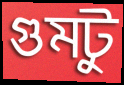
গুমটু